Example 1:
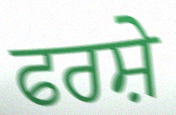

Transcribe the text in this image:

ਫਰਸ਼ੇ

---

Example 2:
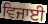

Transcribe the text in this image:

ਵਿਜਾਈ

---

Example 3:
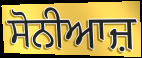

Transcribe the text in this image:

ਸੋਨੀਆਜ਼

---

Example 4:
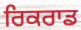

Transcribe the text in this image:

ਰਿਕਰਾਡ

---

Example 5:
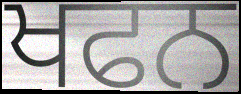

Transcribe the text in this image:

ਖਫਨ